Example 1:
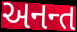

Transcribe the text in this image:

અનન્ત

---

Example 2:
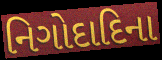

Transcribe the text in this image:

નિગોદાદિના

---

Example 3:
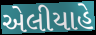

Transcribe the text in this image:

એલીયાહે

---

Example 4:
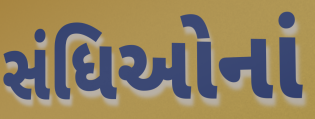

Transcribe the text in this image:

સંધિઓનાં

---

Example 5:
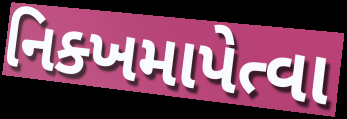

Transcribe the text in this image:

નિક્ખમાપેત્વા